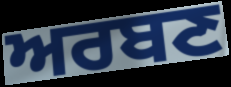
ਅਰਬਣ